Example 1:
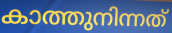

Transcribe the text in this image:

കാത്തുനിന്നത്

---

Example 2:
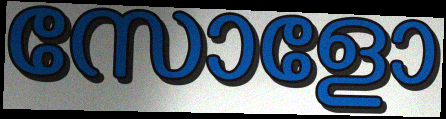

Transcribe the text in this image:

സോളോ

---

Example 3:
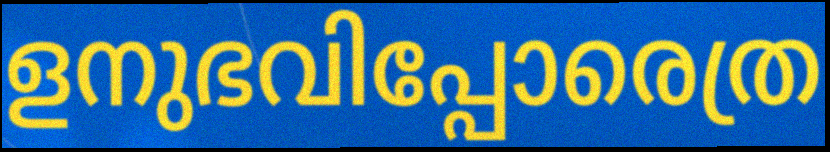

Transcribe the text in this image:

ളനുഭവിപ്പോരെത്ര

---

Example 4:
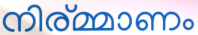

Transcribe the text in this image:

നിര്മ്മാണം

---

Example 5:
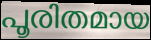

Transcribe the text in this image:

പൂരിതമായ